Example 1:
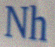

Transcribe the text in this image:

Nh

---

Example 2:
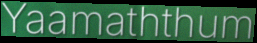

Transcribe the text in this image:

Yaamaththum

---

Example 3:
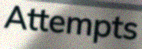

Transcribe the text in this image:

Attempts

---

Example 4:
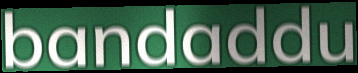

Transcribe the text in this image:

bandaddu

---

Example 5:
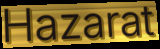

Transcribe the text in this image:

Hazarat